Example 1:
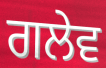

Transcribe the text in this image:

ਗਲੇਵ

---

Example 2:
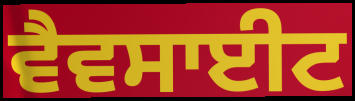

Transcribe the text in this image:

ਵੈਵਸਾਈਟ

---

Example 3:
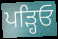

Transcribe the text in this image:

ਪੜ੍ਹਿਓ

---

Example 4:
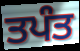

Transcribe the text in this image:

ਤਪੰਤ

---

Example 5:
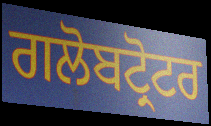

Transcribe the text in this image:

ਗਲੋਬਟ੍ਰੋਟਰ